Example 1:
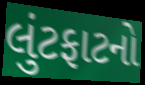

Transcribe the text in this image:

લુંટફાટનો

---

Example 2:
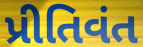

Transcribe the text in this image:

પ્રીતિવંત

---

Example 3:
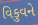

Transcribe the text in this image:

વિકુવને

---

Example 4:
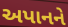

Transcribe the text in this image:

અપાનને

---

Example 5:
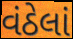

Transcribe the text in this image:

વંઠેલાં